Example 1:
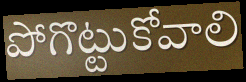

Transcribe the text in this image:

పోగొట్టుకోవాలి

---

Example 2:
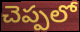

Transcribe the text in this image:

చెప్పలో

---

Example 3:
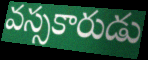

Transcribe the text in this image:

వస్సకారుడు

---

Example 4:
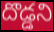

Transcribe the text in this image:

దొడ్డని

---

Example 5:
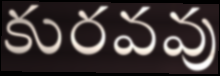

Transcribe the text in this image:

కురవవు